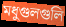
মধুগুলগুলি